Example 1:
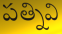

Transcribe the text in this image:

పత్నివి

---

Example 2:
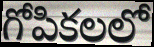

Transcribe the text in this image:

గోపికలలో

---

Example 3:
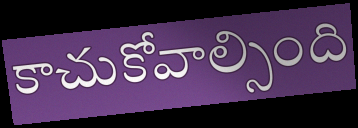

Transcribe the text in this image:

కాచుకోవాల్సింది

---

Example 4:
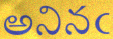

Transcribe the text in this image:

అనినఁ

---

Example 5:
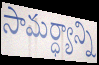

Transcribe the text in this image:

సామర్ధ్యాన్ని